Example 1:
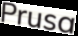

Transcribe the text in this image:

Prusa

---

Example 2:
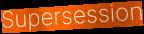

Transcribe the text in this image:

Supersession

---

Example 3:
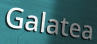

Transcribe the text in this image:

Galatea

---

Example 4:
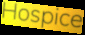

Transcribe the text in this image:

Hospice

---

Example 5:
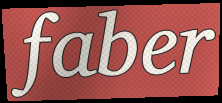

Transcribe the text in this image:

faber